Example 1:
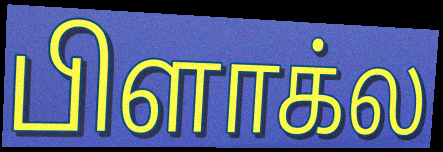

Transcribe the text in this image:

பிளாக்ல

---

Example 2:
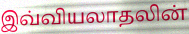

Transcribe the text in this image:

இவ்வியலாதலின்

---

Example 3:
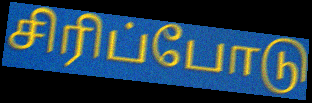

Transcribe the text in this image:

சிரிப்போடு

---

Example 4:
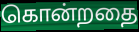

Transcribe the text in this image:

கொன்றதை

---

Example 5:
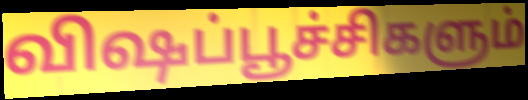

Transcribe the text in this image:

விஷப்பூச்சிகளும்